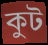
কুট